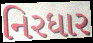
નિરધાર